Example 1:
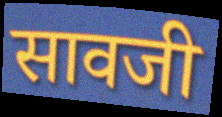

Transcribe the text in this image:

सावजी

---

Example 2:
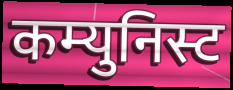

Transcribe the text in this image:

कम्युनिस्ट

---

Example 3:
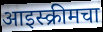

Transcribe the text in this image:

आइस्क्रीमचा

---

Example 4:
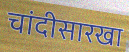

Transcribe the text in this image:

चांदीसारखा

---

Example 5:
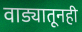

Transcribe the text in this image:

वाड्यातूनही